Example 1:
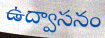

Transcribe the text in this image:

ఉద్వాసనం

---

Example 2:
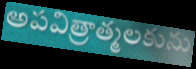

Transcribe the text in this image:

అపవిత్రాత్మలకును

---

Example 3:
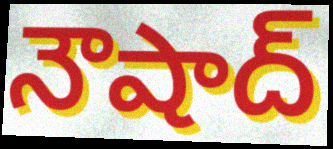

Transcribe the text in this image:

నౌషాద్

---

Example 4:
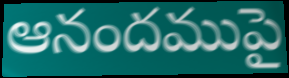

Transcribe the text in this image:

ఆనందముపై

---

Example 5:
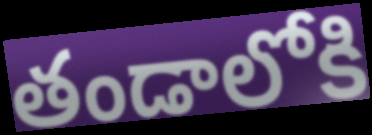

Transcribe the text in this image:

తండాలోకి